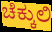
ಚೆಕ್ಕುಲಿ